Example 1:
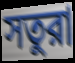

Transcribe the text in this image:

সতুরা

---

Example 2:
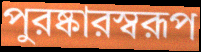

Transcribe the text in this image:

পুরষ্কারস্বরূপ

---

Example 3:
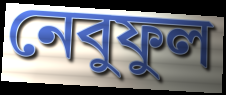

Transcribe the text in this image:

নেবুফুল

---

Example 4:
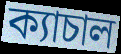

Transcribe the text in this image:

ক্যাচাল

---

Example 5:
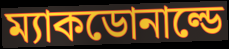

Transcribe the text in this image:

ম্যাকডোনাল্ডে